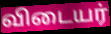
விடையர்